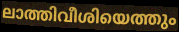
ലാത്തിവീശിയെത്തും